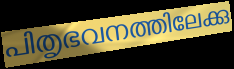
പിതൃഭവനത്തിലേക്കു